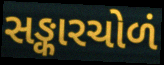
સઙ્કારચોળં